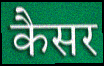
कैसर